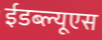
ईडब्ल्यूएस